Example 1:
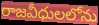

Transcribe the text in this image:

రాజవీధులలోను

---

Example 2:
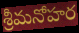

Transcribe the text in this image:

శ్రీమనోహర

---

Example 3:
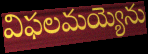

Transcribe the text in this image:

విఫలమయ్యెను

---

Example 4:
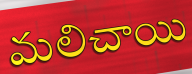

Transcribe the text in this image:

మలిచాయి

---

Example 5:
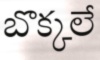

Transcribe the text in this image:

బొక్కలే